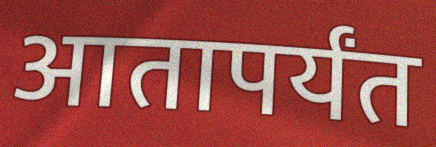
आतापर्यंत